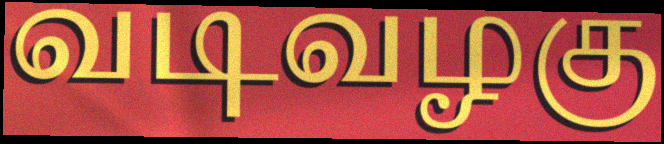
வடிவழகு